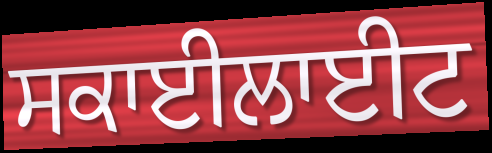
ਸਕਾਈਲਾਈਟ